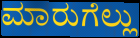
ಮಾರುಗೆಲ್ಲು